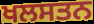
ਖਲਸਤਨ